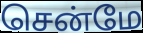
சென்மே